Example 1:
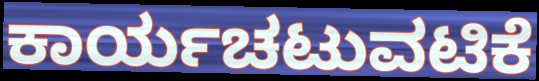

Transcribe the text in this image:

ಕಾರ್ಯಚಟುವಟಿಕೆ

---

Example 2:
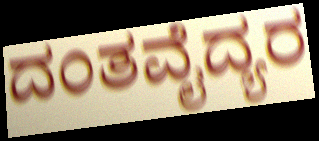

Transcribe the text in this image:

ದಂತವೈದ್ಯರ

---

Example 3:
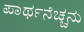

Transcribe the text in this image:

ಪಾರ್ಥನೆಚ್ಚನು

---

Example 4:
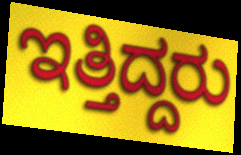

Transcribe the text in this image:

ಇತ್ತಿದ್ದರು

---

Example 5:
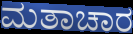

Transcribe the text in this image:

ಮತಾಚಾರ